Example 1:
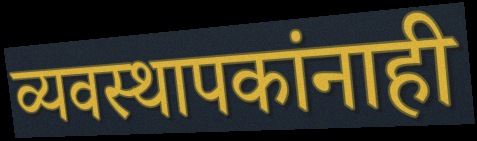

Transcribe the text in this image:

व्यवस्थापकांनाही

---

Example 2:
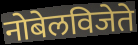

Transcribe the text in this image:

नोबेलविजेते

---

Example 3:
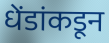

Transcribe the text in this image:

धेंडांकडून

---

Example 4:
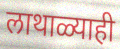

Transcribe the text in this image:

लाथाळ्याही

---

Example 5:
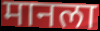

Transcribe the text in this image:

मानला